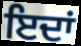
ਇਦਾਂ